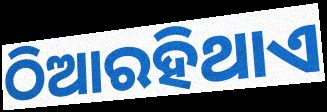
ଠିଆରହିଥାଏ